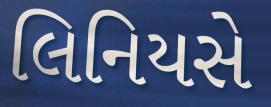
લિનિયસે